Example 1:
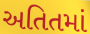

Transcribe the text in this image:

અતિતમાં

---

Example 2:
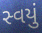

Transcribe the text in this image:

સ્વયું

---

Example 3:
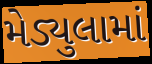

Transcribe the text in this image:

મેડ્યુલામાં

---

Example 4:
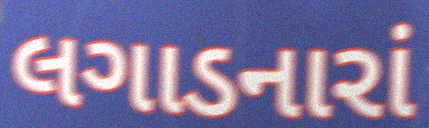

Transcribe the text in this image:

લગાડનારાં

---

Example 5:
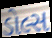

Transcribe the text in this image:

ડોલ્સ